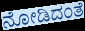
ನೋಡಿದಂತೆ